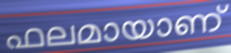
ഫലമായാണ്